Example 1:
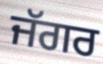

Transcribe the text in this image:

ਜੱਗਰ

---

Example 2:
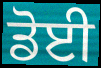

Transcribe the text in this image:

ਡੋਈ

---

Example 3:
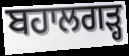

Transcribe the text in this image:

ਬਹਾਲਗੜ੍ਹ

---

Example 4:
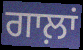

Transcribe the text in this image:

ਗਾਲ਼ਾਂ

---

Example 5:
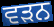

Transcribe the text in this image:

ਵੜਨ